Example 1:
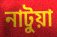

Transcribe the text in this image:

নাটুয়া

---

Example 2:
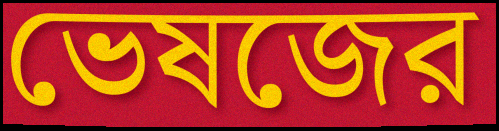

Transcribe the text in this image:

ভেষজের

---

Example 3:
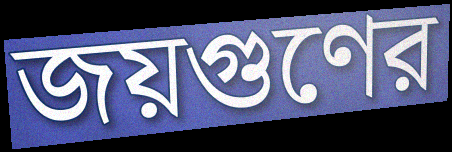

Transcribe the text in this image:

জয়গুণের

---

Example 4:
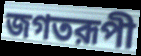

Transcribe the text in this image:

জগতরূপী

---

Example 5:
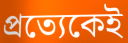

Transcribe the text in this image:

প্রত্যেকেই